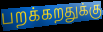
பறக்கறதுக்கு